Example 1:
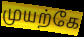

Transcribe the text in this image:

முயற்கே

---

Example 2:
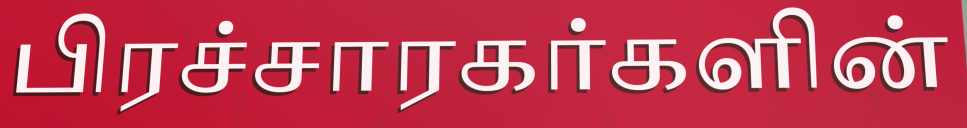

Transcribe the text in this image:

பிரச்சாரகர்களின்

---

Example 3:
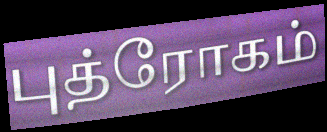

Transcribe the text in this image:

புத்ரோகம்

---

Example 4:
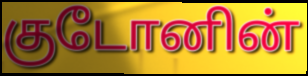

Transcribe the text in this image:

குடோனின்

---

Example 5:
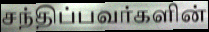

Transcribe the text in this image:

சந்திப்பவர்களின்